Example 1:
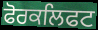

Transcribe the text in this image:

ਫੋਰਕਲਿਫਟ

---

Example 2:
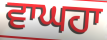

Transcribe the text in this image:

ਵਾਘਹਾ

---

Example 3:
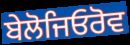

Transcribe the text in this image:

ਬੇਲੋਜਿਓਰੋਵ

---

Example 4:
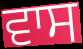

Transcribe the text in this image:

ਵਾਸ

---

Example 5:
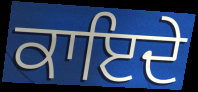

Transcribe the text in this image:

ਕਾਇਦੇ